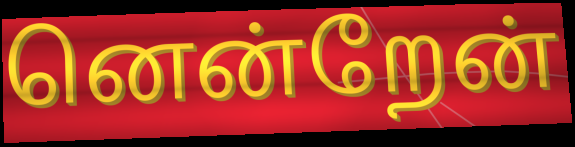
னென்றேன்